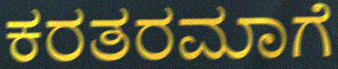
ಕರತರಮಾಗೆ